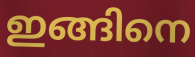
ഇങ്ങിനെ